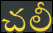
చలీ